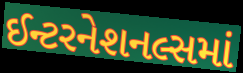
ઈન્ટરનેશનલ્સમાં